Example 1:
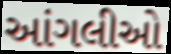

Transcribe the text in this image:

આંગલીઓ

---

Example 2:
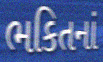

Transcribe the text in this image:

ભકિતનાં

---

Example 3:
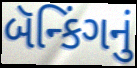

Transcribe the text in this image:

બૅન્કિંગનું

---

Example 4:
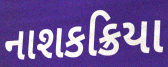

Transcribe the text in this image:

નાશકક્રિયા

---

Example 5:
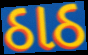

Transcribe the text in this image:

ઠાઠ